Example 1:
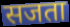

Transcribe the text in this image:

सजता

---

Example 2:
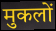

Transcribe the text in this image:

मुकलों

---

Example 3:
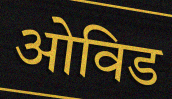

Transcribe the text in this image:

ओविड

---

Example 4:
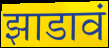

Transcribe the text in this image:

झाडावं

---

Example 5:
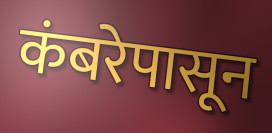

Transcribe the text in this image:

कंबरेपासून